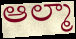
ఆల్మా